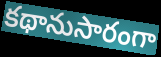
కథానుసారంగా